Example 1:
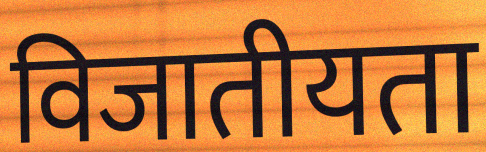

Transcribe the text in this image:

विजातीयता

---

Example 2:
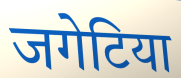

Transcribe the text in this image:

जगेटिया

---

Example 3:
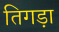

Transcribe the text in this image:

तिगड़ा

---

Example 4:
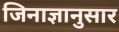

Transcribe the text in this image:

जिनाज्ञानुसार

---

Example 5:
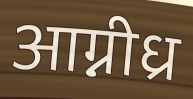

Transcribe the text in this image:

आग्नीध्र